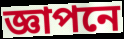
জ্ঞাপনে